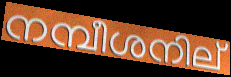
നമ്പീശനില്